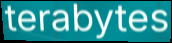
terabytes